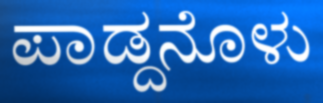
ಪಾಡ್ದನೊಳು